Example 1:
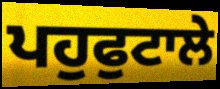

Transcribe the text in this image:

ਪਹੁਫੁਟਾਲੇ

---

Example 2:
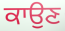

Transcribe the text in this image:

ਕਾਉਣ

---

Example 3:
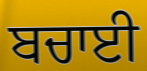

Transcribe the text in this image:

ਬਚਾਈ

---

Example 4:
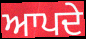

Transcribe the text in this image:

ਆਪਦੇ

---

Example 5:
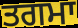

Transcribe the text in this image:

ਤਗਮਾ